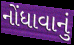
નોંધાવાનું